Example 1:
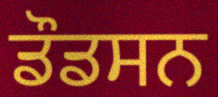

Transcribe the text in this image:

ਡੌਡਸਨ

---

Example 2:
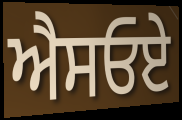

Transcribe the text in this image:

ਐਸਓਏ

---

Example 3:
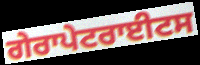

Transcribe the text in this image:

ਗੇਰਾਪੇਟਰਾਈਟਸ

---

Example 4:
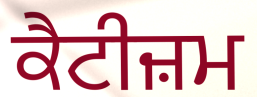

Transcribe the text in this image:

ਕੈਟੀਜ਼ਮ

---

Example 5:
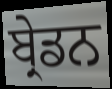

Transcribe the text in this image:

ਬ੍ਰੇਡਨ